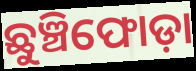
ଛୁଞ୍ଚିଫୋଡ଼ା